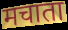
मचाता